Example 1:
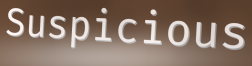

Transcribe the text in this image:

Suspicious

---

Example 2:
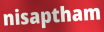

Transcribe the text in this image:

nisaptham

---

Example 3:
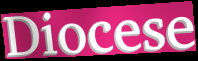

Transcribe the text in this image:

Diocese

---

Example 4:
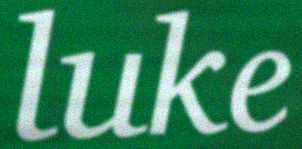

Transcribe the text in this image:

luke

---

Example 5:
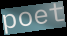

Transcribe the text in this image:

poet